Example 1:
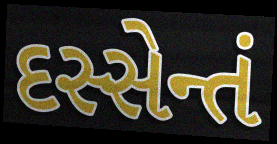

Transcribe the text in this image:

દસ્સેન્તં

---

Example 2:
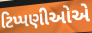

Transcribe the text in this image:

ટિપ્પણીઓએ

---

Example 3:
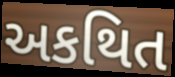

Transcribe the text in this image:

અકથિત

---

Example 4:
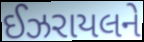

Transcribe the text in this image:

ઈઝરાયલને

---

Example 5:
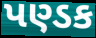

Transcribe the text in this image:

પણ્ડક